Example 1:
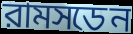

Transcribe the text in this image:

রামসডেন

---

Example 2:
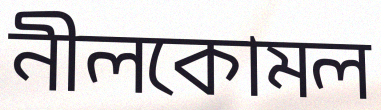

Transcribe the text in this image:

নীলকোমল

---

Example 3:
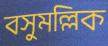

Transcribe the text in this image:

বসুমল্লিক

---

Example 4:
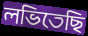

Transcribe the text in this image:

লভিতেছি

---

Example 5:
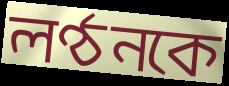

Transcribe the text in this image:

লণ্ঠনকে